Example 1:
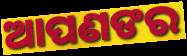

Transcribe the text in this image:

ଆପଣଙର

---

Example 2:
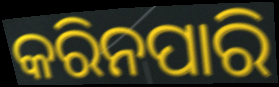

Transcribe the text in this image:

କରିନପାରି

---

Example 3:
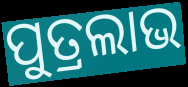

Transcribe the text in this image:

ପୁତ୍ରଲାଭ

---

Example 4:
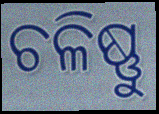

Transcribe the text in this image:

ଚଳିଷ୍ଣୁ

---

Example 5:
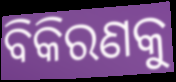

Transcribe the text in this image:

ବିକିରଣକୁ